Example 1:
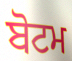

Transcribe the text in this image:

ਬੋਟਮ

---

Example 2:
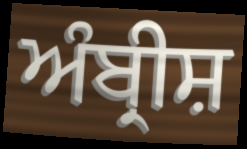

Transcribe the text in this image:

ਅੰਬ੍ਰੀਸ਼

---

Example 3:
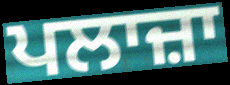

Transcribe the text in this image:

ਪਲਾਜ਼ਾ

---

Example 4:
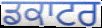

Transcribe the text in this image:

ਡਕਾਟਰ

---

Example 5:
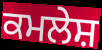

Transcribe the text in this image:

ਕਮਲੇਸ਼